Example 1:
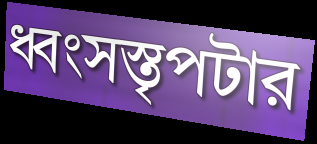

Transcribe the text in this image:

ধ্বংসস্তৃপটার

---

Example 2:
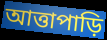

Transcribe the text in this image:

আত্তাপাড়ি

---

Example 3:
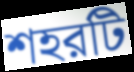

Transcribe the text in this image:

শহরটি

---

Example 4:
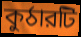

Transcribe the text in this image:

কুঠারটি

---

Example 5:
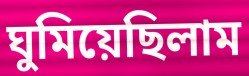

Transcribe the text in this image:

ঘুমিয়েছিলাম